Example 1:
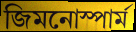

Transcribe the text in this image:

জিমনোস্পার্ম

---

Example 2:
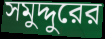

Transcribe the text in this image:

সমুদ্দুরের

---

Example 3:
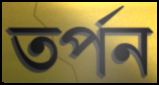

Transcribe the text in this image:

তর্পন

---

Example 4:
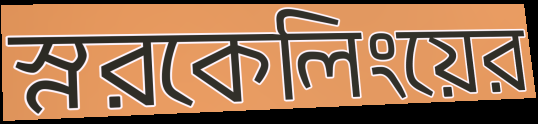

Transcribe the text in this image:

স্নরকেলিংয়ের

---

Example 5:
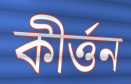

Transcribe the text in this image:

কীর্ত্তন